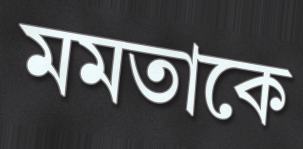
মমতাকে